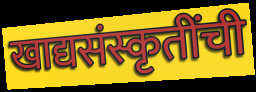
खाद्यसंस्कृतींची